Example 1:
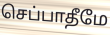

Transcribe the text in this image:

செப்பாதீமே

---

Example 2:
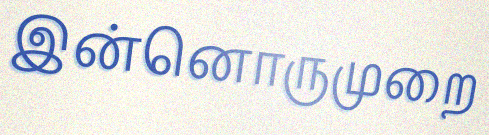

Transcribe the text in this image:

இன்னொருமுறை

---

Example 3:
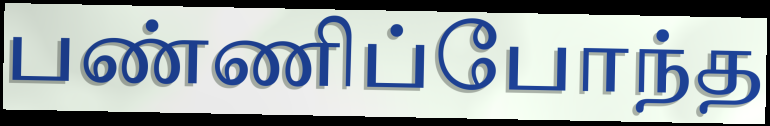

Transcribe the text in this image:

பண்ணிப்போந்த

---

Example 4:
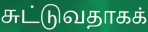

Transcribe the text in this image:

சுட்டுவதாகக்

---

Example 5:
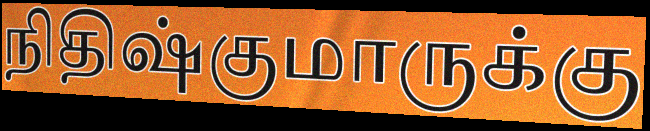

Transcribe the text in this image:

நிதிஷ்குமாருக்கு